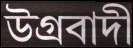
উগ্ৰবাদী